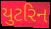
યુટરિન